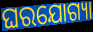
ଘରଯୋଗ୍ୟା